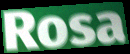
Rosa